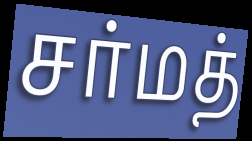
சர்மத்